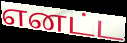
எனட்ட